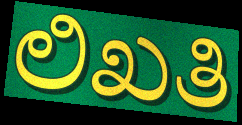
ಲಿಖತಿ